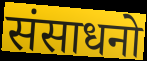
संसाधनो